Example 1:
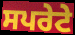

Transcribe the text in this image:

ਸਪਰੇਟੇ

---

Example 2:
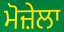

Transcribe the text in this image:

ਮੋਜ਼ੇਲਾ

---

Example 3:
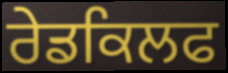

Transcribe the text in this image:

ਰੇਡਕਿਲਫ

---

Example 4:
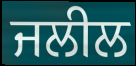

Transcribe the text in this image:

ਜਲੀਲ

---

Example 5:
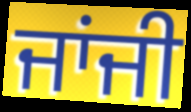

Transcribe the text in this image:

ਜਾਂਜੀ